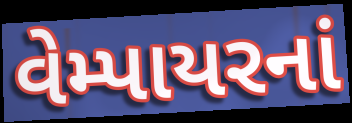
વેમ્પાયરનાં